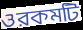
ওরকমটি